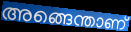
അങ്ങെന്താണ്